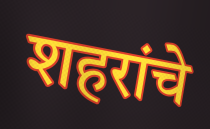
शहरांचे